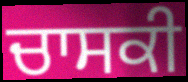
ਚਾਸਕੀ